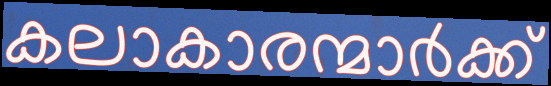
കലാകാരന്മാർക്ക്